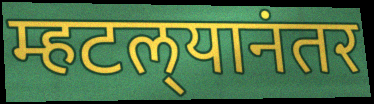
म्हटल्यानंतर